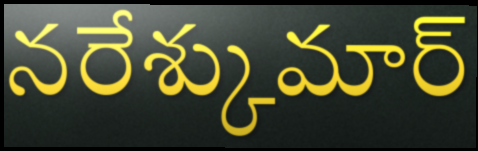
నరేశ్కుమార్